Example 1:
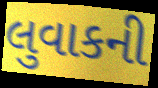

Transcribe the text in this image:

લુવાકની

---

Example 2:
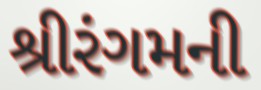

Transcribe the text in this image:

શ્રીરંગમની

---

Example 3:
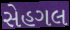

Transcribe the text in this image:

સેહગલ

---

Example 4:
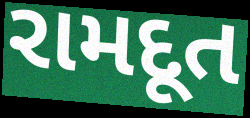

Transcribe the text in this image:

રામદૂત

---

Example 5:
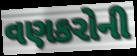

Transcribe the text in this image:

વણકરોની